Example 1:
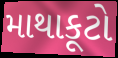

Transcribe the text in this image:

માથાકૂટો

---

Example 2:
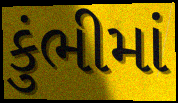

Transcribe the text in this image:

કુંભીમાં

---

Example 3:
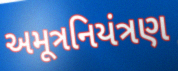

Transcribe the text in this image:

અમૂત્રનિયંત્રણ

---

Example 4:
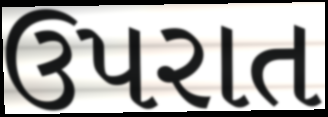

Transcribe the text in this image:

ઉપરાત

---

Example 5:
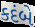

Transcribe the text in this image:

કદંબે